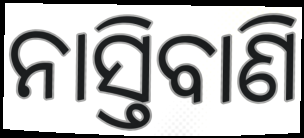
ନାସ୍ତିବାଣି